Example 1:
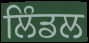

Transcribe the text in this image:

ਲਿੰਡਲ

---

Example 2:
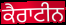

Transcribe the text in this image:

ਕੈਰਾਟੀਨ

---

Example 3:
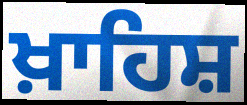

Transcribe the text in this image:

ਖ਼ਾਹਿਸ਼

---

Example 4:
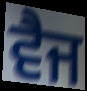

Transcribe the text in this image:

ਵੈਜ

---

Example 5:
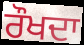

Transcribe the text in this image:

ਰੌਖਦਾ